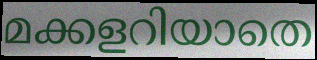
മക്കളറിയാതെ